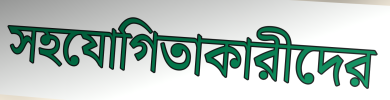
সহযোগিতাকারীদের